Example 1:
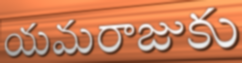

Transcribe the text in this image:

యమరాజుకు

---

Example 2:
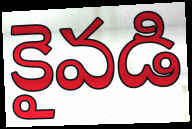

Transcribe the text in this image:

కైవడి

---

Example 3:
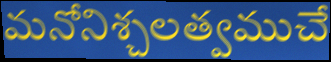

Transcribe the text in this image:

మనోనిశ్చలత్వముచే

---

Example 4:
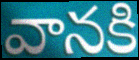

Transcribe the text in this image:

వానకి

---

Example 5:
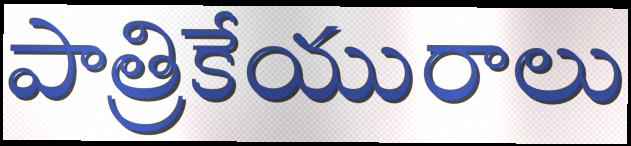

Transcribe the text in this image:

పాత్రికేయురాలు